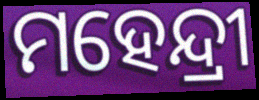
ମହେନ୍ଦ୍ରୀ